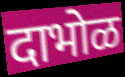
दाभोळ